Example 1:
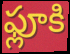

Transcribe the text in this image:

ఫ్లూకి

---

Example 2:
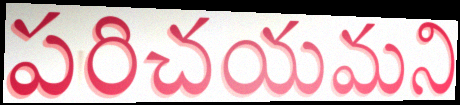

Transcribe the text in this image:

పరిచయమని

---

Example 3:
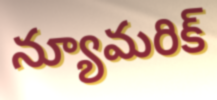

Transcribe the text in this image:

న్యూమరిక్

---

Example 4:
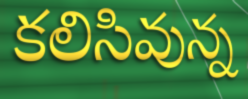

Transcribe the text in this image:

కలిసివున్న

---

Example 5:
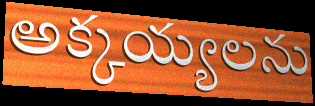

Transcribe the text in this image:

అక్కయ్యలను